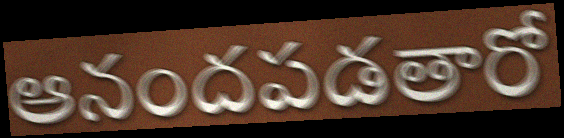
ఆనందపడతారో